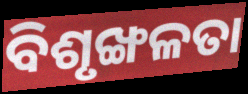
ବିଶୃଙ୍ଖଳତା